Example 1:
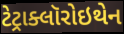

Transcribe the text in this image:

ટેટ્રાક્લૉરોઇથેન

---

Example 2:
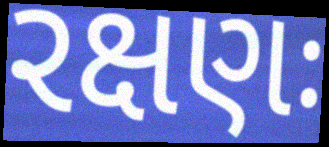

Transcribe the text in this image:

રક્ષણઃ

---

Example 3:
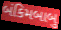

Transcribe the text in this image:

બંકિમબાબુ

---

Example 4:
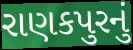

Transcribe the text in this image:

રાણકપુરનું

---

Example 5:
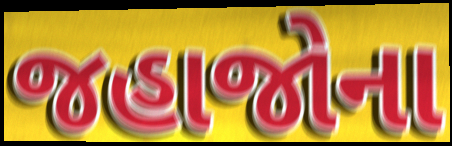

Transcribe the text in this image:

જહાજોના